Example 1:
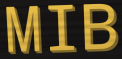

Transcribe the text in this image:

MIB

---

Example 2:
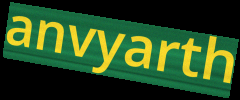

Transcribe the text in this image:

anvyarth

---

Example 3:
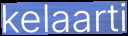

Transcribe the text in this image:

kelaarti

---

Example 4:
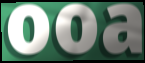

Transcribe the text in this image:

ooa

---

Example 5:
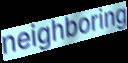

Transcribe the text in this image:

neighboring